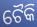
ଚୈକି